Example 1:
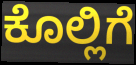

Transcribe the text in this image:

ಕೊಲ್ಲಿಗೆ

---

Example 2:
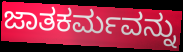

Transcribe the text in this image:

ಜಾತಕರ್ಮವನ್ನು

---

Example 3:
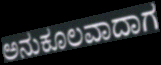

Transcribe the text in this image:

ಅನುಕೂಲವಾದಾಗ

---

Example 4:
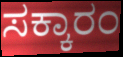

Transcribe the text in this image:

ಸಕ್ಕಾರಂ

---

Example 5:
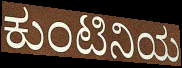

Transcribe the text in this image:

ಕುಂಟಿನಿಯ